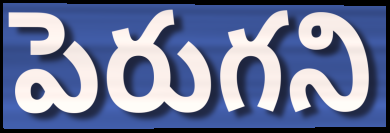
పెరుగని